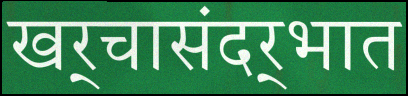
खर्चासंदर्भात